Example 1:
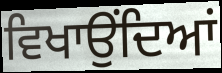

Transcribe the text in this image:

ਵਿਖਾਉਂਦਿਆਂ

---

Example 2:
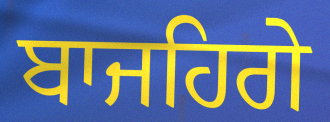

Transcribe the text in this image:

ਬਾਜਹਿਗੇ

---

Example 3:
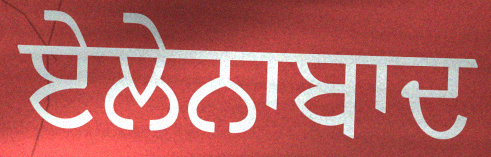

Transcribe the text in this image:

ਏਲੇਨਾਬਾਦ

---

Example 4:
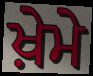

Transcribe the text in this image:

ਖ਼ੇਮੇ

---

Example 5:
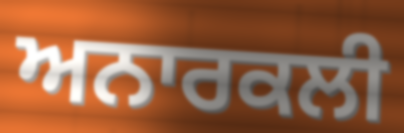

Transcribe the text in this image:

ਅਨਾਰਕਲੀ